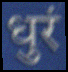
धुरं